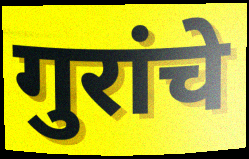
गुरांचे